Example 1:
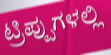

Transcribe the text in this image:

ಟ್ರಿಪ್ಪುಗಳಲ್ಲಿ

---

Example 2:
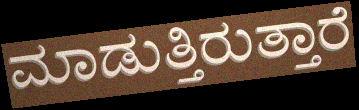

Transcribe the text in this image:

ಮಾಡುತ್ತಿರುತ್ತಾರೆ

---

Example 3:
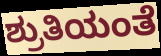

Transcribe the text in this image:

ಶ್ರುತಿಯಂತೆ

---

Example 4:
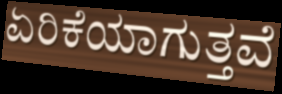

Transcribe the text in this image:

ಏರಿಕೆಯಾಗುತ್ತವೆ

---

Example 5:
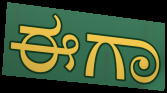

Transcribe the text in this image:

ಈಗಾ